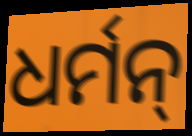
ଧର୍ମନ୍